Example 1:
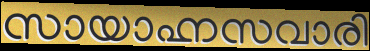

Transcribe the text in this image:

സായാഹ്നസവാരി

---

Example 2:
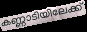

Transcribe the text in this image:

കണ്ണാടിയിലേക്ക്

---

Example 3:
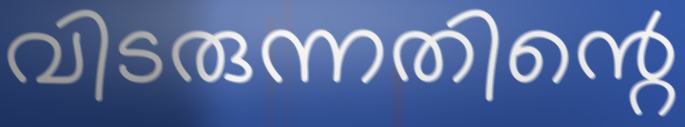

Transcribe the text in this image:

വിടരുന്നതിന്റെ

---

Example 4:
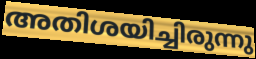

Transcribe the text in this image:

അതിശയിച്ചിരുന്നു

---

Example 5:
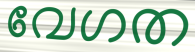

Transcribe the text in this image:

വേഗത